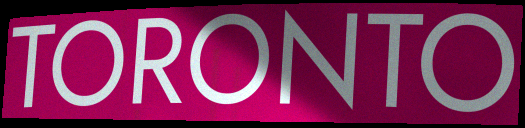
TORONTO